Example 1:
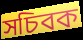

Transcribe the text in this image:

সচিবক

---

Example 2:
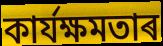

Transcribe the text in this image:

কাৰ্যক্ষমতাৰ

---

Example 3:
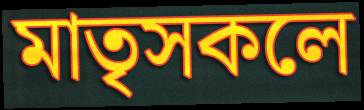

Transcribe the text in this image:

মাতৃসকলে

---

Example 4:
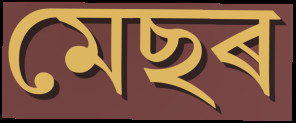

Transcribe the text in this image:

মেছৰ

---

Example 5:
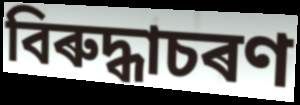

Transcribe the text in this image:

বিৰুদ্ধাচৰণ